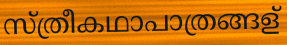
സ്ത്രീകഥാപാത്രങ്ങള്